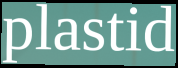
plastid